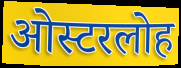
ओस्टरलोह